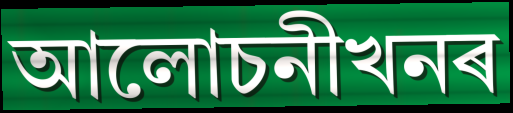
আলোচনীখনৰ